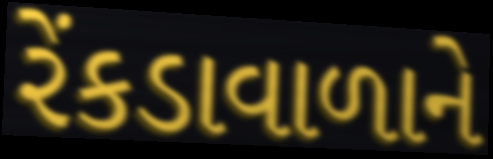
રેંકડાવાળાને